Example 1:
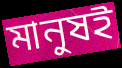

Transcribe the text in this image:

মানুষই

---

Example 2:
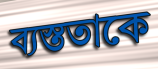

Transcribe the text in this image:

ব্যস্ততাকে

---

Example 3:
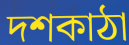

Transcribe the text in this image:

দশকাঠা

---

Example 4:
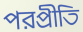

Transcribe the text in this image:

পরপ্রীতি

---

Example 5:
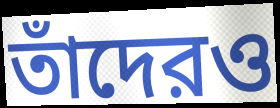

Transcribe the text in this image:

তাঁদেরও